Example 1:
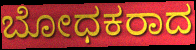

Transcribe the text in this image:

ಬೋಧಕರಾದ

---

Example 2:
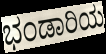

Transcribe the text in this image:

ಭಂಡಾರಿಯ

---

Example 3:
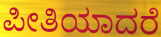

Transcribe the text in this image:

ಪೀತಿಯಾದರೆ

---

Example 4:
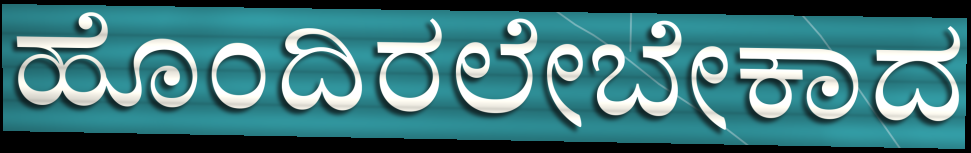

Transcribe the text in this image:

ಹೊಂದಿರಲೇಬೇಕಾದ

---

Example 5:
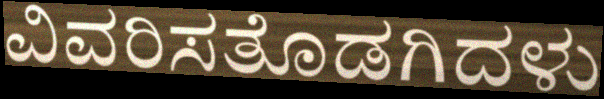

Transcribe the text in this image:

ವಿವರಿಸತೊಡಗಿದಳು